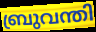
ബ്രുവന്തി